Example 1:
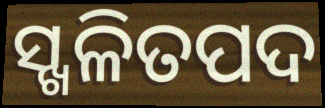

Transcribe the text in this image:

ସ୍ଖଳିତପଦ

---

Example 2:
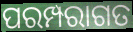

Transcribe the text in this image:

ପରମ୍ପରାଗତ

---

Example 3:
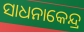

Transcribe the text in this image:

ସାଧନାକେନ୍ଦ୍ର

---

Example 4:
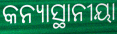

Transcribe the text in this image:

କନ୍ୟାସ୍ଥାନୀୟା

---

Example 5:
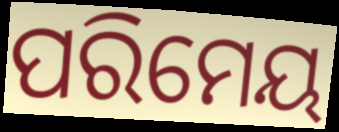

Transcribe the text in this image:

ପରିମେୟ